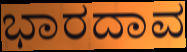
ಭಾರದಾವ